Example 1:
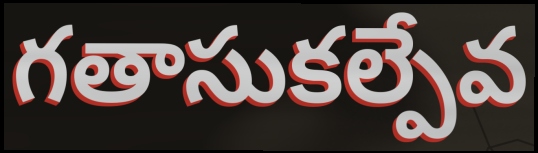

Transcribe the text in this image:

గతాసుకల్పేవ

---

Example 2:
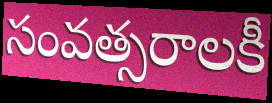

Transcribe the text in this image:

సంవత్సరాలకీ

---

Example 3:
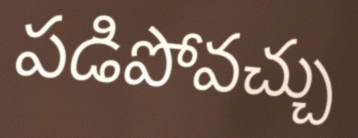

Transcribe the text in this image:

పడిపోవచ్చు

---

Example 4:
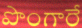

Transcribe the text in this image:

పొంగారే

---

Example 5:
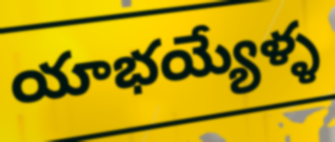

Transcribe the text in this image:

యాభయ్యేళ్ళ